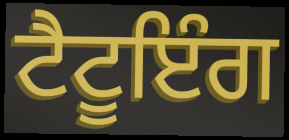
ਟੈਟੂਇੰਗ